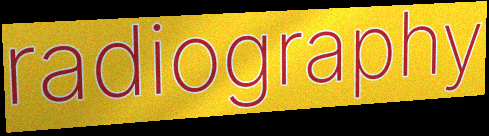
radiography